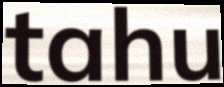
tahu